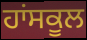
ਹਾਂਸਕੂਲ